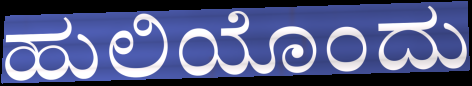
ಹುಲಿಯೊಂದು